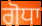
ਗੋਧਾ